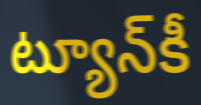
ట్యూన్‌కీ